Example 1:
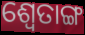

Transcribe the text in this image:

ଶ୍ୱେତାଙ୍ଗ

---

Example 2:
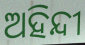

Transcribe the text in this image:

ଅହିନ୍ଦୀ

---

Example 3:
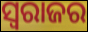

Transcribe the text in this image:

ସ୍ୱରାଜର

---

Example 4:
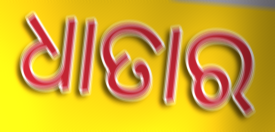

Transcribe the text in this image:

ଧାତାର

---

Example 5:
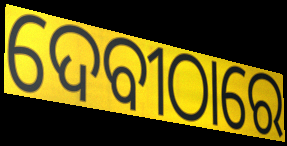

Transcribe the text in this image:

ଦେବୀଠାରେ